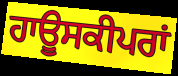
ਹਾਊਸਕੀਪਰਾਂ